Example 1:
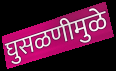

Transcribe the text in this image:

घुसळणीमुळे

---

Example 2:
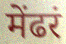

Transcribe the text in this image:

मेंढरं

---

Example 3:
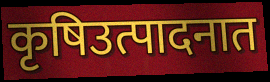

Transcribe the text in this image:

कृषिउत्पादनात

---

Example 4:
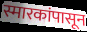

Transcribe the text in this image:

स्मारकांपासून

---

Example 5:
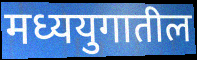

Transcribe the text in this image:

मध्ययुगातील